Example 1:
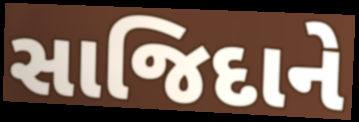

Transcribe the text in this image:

સાજિદાને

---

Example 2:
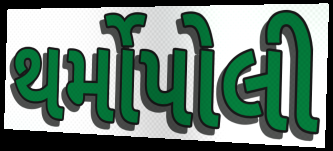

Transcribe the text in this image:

થર્મોપોલી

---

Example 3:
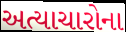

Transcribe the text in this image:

અત્યાચારોના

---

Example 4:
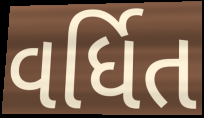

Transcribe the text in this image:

વર્ધિત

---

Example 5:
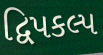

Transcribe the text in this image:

દ્વિપકલ્પ